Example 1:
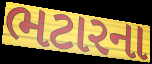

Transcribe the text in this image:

ભટારના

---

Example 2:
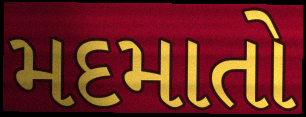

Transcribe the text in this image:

મદમાતો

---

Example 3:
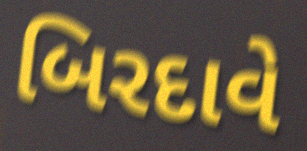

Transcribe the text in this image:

બિરદાવે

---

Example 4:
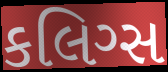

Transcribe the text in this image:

કલિગ્સ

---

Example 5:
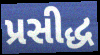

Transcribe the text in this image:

પ્રસીદ્ધ